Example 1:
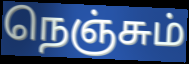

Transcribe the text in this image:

நெஞ்சும்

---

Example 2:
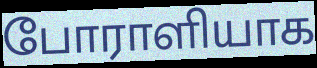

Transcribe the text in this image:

போராளியாக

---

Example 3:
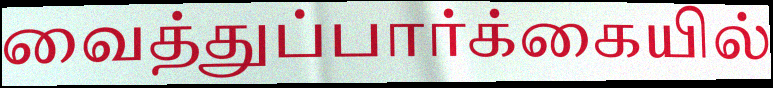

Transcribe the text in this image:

வைத்துப்பார்க்கையில்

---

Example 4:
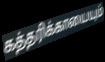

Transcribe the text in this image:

கத்தரிக்காயையும்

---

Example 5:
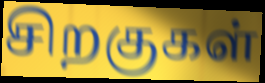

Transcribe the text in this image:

சிறகுகள்